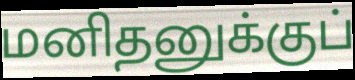
மனிதனுக்குப்